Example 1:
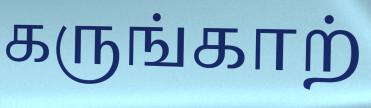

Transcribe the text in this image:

கருங்காற்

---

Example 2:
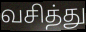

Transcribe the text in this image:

வசித்து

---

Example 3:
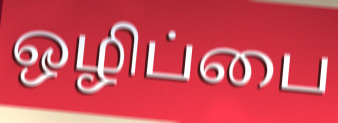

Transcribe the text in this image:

ஒழிப்பை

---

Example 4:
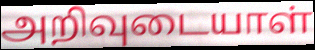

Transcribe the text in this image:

அறிவுடையாள்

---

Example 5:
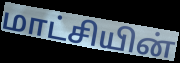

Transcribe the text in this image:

மாட்சியின்